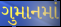
ગુમાનમાં